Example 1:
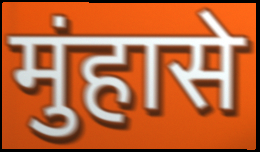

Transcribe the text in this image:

मुंहासे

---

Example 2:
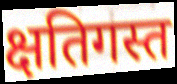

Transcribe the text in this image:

क्षतिगस्त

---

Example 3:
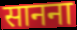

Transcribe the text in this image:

सानना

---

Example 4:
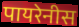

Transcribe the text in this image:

पायरेनीस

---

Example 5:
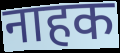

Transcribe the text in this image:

नाहक